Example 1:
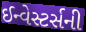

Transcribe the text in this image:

ઈન્વેસ્ટર્સની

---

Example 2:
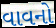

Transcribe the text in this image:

વાવનો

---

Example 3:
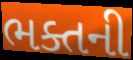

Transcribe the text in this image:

ભક્તની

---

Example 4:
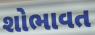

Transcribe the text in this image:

શોભાવત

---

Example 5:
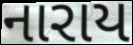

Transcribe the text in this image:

નારાય